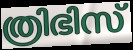
ത്രിഭിസ്